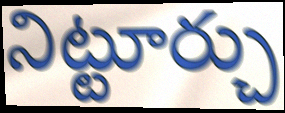
నిట్టూర్చు